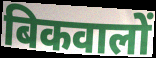
बिकवालों